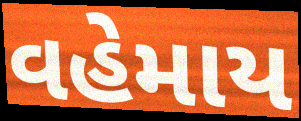
વહેમાય